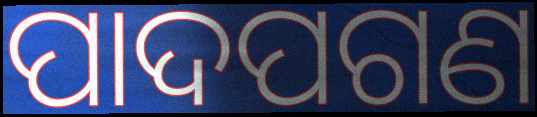
ପାଦପଗଣ